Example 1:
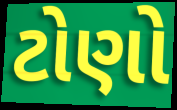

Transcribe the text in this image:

ટોણો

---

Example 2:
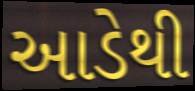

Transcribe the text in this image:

આડેથી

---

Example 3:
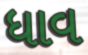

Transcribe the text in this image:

ધાવ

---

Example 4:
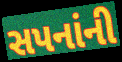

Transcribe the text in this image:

સપનાંની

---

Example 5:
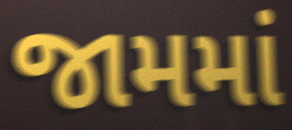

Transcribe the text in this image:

જામમાં